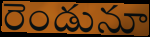
రెండునూ